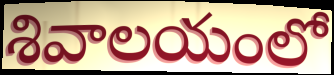
శివాలయంలో